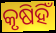
କୃଷିହିଁ